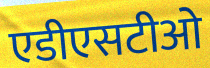
एडीएसटीओ